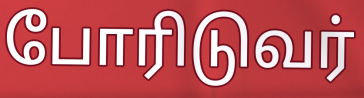
போரிடுவர்